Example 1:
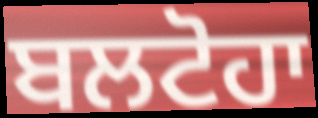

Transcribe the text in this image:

ਬਲਟੋਹਾ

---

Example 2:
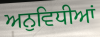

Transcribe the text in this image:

ਅਨੁਵਿਧੀਆਂ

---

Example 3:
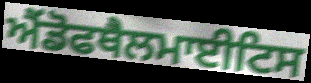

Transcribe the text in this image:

ਐਂਡੋਫਥੈਲਮਾਈਟਿਸ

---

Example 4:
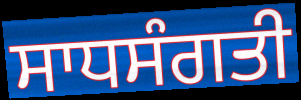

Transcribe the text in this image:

ਸਾਧਸੰਗਤੀ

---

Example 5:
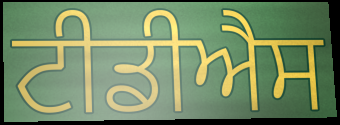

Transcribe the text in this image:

ਟੀਡੀਐਸ